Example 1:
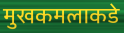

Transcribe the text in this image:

मुखकमलाकडे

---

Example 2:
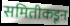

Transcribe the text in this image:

समितीकडून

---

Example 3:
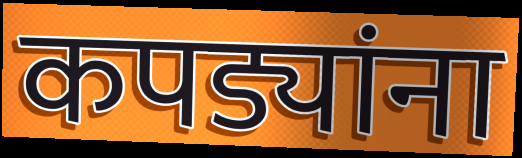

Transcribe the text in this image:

कपड्यांना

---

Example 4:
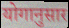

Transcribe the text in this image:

योगानुसार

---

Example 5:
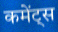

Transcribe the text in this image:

कमेंट्स